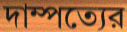
দাম্পত্যের